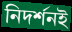
নিদর্শনই